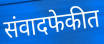
संवादफेकीत